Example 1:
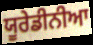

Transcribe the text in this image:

ਯੂਰੇਡੀਨੀਆ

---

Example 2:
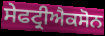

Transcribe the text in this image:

ਸੇਫਟ੍ਰੀਐਕਸੋਨ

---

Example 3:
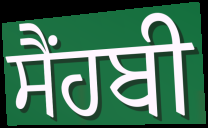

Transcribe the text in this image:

ਸੈਂਹਬੀ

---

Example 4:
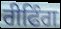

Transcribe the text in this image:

ਰੀਫਿੰਗ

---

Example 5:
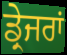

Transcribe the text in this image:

ਡ੍ਰੇਜਰਾਂ